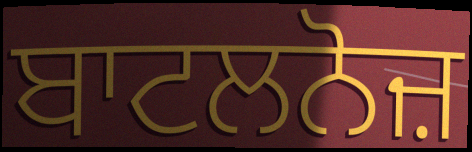
ਬਾਟਲਨੋਜ਼